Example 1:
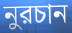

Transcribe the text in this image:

নুরচান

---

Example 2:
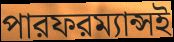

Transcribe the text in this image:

পারফরম্যান্সই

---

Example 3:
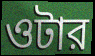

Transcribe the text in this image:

ওটার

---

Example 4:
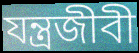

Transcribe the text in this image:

যন্ত্রজীবী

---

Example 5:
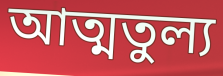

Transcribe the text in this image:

আত্মতুল্য